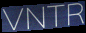
VNTR